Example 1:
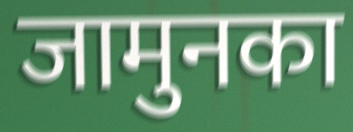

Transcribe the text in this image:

जामुनका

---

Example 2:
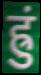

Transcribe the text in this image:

ह्रुं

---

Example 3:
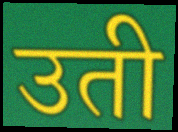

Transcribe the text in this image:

उती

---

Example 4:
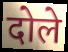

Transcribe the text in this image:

दोले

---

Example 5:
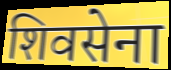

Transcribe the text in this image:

शिवसेना